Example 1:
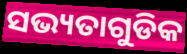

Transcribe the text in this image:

ସଭ୍ୟତାଗୁଡିକ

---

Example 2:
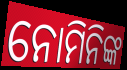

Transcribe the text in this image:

ନୋମିନିଙ୍କ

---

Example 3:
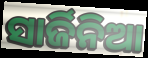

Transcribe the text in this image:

ସାର୍ଜିନିଆ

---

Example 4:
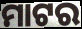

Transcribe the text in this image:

ମାଟର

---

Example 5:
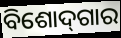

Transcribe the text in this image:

ବିଶୋଦ୍‌ଗାର